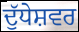
ਦੁੱਧੇਸ਼ਵਰ